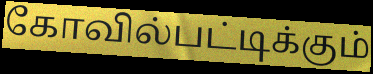
கோவில்பட்டிக்கும்